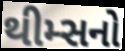
થીમ્સનો